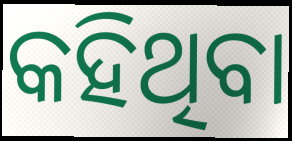
କହିଥିବା